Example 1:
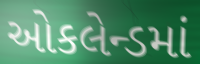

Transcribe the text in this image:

ઓકલેન્ડમાં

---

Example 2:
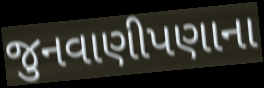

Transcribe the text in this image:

જુનવાણીપણાના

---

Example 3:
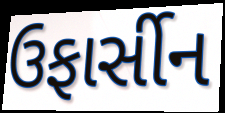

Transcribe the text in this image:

ઉફાર્સીન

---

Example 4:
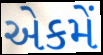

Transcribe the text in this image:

એકમેં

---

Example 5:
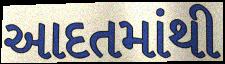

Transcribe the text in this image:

આદતમાંથી